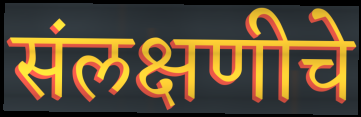
संलक्षणीचे